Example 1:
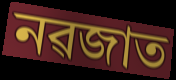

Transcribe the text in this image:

নৱজাত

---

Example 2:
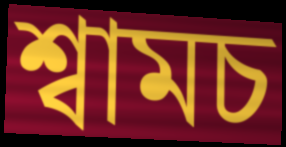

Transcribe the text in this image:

শ্বামচ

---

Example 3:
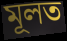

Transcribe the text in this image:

মূলত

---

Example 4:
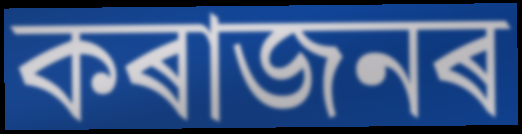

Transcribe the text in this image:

কৰাজনৰ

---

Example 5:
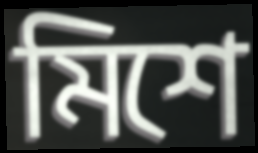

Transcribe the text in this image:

মিশে